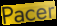
Pacer